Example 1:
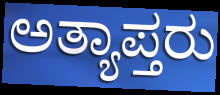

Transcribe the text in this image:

ಅತ್ಯಾಪ್ತರು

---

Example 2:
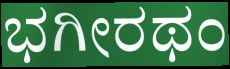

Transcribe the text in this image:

ಭಗೀರಥಂ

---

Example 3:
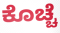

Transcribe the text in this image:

ಕೊಚ್ಚೆ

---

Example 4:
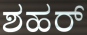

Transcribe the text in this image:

ಶಹರ್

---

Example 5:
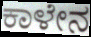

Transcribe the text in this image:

ಕಾಳೇನ